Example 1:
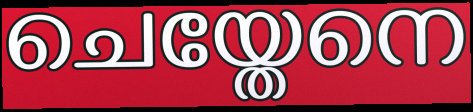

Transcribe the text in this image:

ചെയ്തേനെ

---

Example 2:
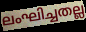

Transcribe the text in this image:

ലംഘിച്ചതല്ല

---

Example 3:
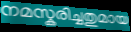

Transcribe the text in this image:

നമസ്കരിച്ചതുമായ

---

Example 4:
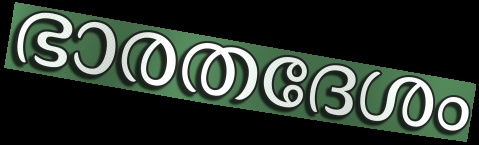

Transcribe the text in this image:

ഭാരതദേശം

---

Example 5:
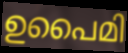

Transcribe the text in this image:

ഉപൈമി